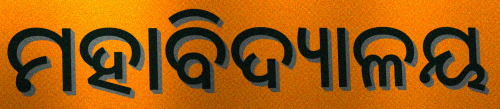
ମହାବିଦ୍ୟାଳୟ